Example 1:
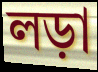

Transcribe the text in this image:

লড়া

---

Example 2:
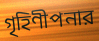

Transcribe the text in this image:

গৃহিণীপনার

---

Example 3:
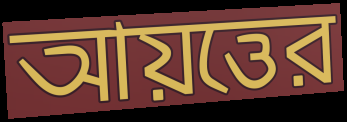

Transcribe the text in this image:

আয়ত্তের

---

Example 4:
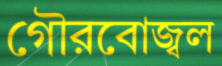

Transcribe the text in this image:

গৌরবোজ্বল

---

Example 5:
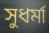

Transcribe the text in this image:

সুধর্মা